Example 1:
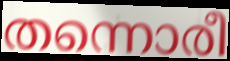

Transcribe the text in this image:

തന്നൊരീ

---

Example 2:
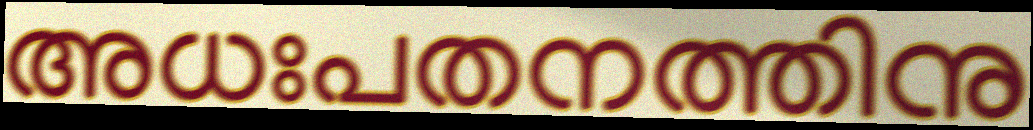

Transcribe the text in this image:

അധഃപതനത്തിനു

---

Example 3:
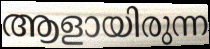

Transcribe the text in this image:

ആളായിരുന്ന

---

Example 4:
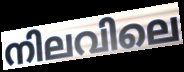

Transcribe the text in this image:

നിലവിലെ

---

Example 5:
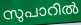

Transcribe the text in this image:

സുപാറിൽ